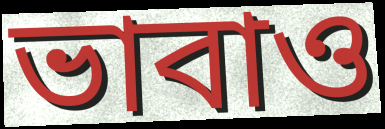
ভাবাও